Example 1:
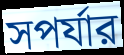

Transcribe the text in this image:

সপর্যার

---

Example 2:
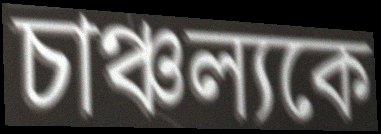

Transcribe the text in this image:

চাঞ্চল্যকে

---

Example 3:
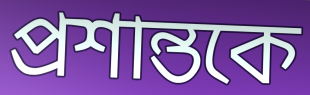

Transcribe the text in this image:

প্রশান্তকে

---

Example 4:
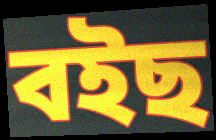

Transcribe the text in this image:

বইছ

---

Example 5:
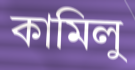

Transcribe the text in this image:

কামিলু